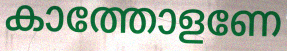
കാത്തോളണേ